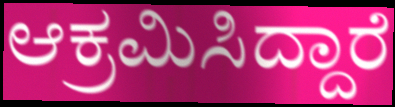
ಆಕ್ರಮಿಸಿದ್ದಾರೆ